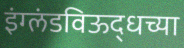
इंग्लंडविऊद्धच्या